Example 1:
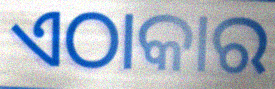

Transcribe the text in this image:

ଏଠାକାର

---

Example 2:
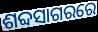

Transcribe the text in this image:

ଶବ୍ଦସାଗରରେ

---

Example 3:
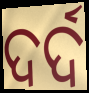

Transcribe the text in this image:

ଦର୍ଦ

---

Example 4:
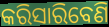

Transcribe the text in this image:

କରିସାରିବେଣି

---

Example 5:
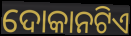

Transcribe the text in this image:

ଦୋକାନଟିଏ